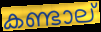
കണ്ടാല്